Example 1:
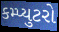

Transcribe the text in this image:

કમ્પ્યુટરો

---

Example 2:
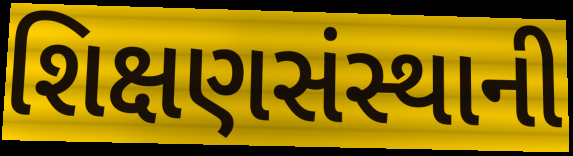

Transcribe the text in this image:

શિક્ષણસંસ્થાની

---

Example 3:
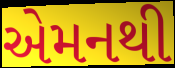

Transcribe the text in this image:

એમનથી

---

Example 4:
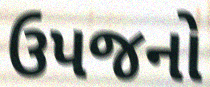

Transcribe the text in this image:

ઉપજનો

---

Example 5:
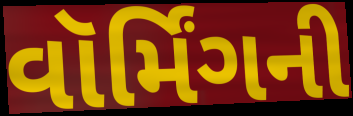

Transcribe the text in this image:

વૉર્મિંગની